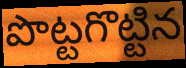
పొట్టగొట్టిన